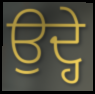
ਉਦ੍ਹੇ